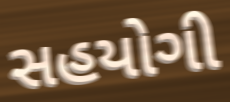
સહયોગી